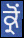
ਕ੍ਰੋਂ